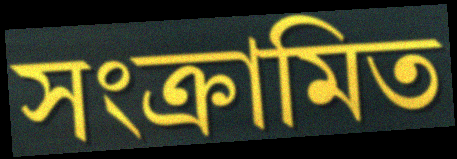
সংক্রামিত